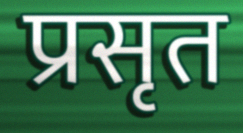
प्रसृत